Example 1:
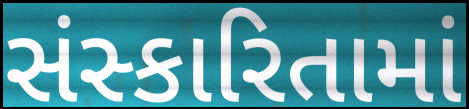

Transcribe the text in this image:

સંસ્કારિતામાં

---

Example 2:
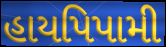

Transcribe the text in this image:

હાયપિપામી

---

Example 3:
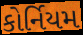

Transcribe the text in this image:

કોર્નિયમ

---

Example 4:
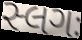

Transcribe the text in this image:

સ્લગઃ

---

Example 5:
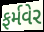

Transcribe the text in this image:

ફર્મવેર